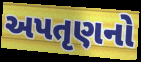
અપતૃણનો